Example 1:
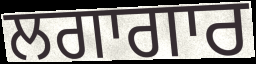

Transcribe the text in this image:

ਲਗਾਗਾਰ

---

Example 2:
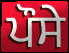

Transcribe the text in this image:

ਪੌਸੇ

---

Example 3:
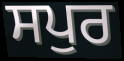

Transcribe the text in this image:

ਸਪੁਰ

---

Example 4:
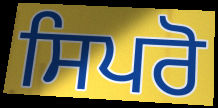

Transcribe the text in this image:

ਸਿਪਰੋ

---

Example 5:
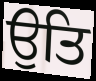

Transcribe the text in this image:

ਉਤਿ